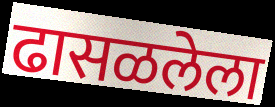
ढासळलेला